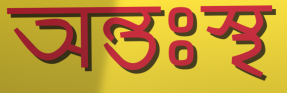
অন্তঃস্থ